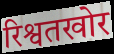
रिश्वतखोर